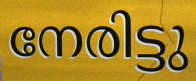
നേരിട്ടു